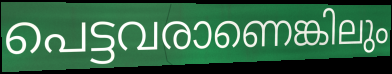
പെട്ടവരാണെങ്കിലും